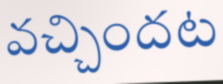
వచ్చిందట